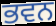
ਭਵਨ